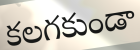
కలగకుండా